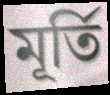
মূৰ্তি